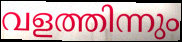
വളത്തിന്നും